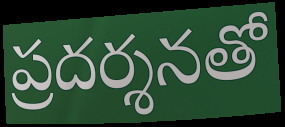
ప్రదర్శనతో